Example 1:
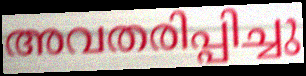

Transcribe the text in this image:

അവതരിപ്പിച്ചു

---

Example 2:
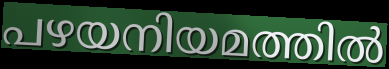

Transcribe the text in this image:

പഴയനിയമത്തിൽ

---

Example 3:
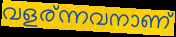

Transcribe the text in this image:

വളര്ന്നവനാണ്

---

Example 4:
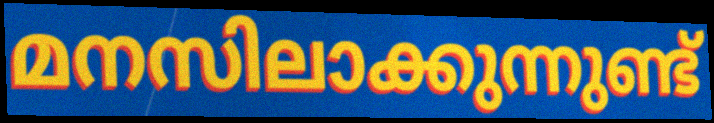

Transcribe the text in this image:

മനസിലാക്കുന്നുണ്ട്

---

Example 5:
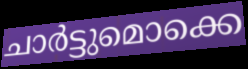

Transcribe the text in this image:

ചാർട്ടുമൊക്കെ